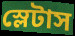
স্লেটাস